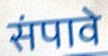
संपावे